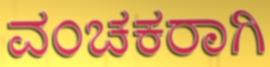
ವಂಚಕರಾಗಿ